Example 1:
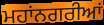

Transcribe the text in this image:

ਮਹਾਂਨਗਰੀਆਂ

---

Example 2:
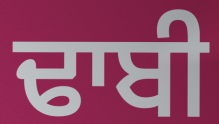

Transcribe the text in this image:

ਢਾਬੀ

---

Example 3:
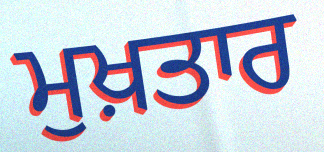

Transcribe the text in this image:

ਮੁਖ਼ਤਾਰ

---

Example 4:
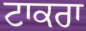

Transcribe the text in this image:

ਟਾਕਰਾ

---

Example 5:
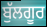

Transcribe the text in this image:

ਬੁੱਲਗੂਰ